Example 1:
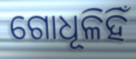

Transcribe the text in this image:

ଗୋଧୂଳିହିଁ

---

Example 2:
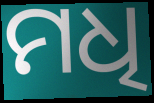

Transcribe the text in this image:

ମଧି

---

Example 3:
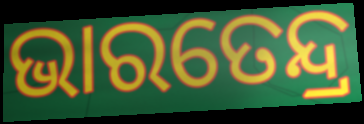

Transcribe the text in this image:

ଭାରତେନ୍ଦ୍ର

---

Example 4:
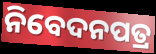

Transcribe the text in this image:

ନିବେଦନପତ୍ର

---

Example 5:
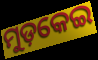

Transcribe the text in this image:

ମୁଡ଼କେଇ